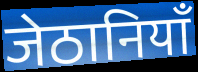
जेठानियाँ